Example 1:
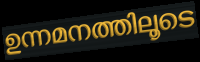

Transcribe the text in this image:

ഉന്നമനത്തിലൂടെ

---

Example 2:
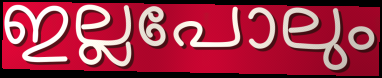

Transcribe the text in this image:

ഇല്ലപോലും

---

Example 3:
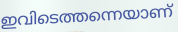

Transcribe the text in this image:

ഇവിടെത്തന്നെയാണ്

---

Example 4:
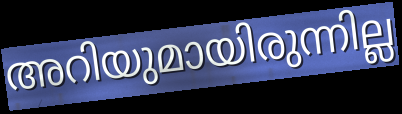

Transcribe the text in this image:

അറിയുമായിരുന്നില്ല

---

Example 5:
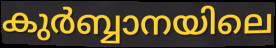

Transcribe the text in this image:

കുർബ്ബാനയിലെ